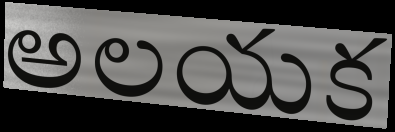
అలయక